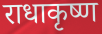
राधाकृष्ण